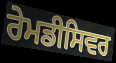
ਰੇਮਡੀਸਿਵਰ